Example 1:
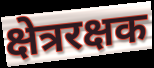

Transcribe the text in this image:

क्षेत्ररक्षक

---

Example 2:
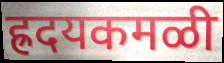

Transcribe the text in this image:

ह्रदयकमळी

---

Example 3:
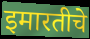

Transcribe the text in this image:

इमारतीचे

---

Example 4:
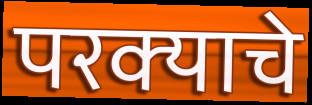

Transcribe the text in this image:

परक्याचे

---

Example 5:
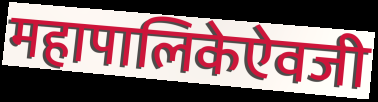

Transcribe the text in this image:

महापालिकेऐवजी